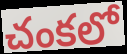
చంకలో